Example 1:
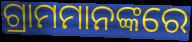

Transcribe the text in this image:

ଗ୍ରାମମାନଙ୍କରେ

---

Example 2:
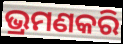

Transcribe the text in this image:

ଭ୍ରମଣକରି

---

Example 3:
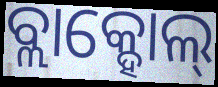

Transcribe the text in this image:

ବ୍ଲାକ୍ହୋଲ୍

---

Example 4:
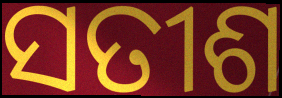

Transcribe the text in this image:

ସତୀଶ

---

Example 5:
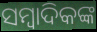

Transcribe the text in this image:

ସମ୍ୱାଦିକଙ୍କ